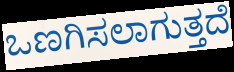
ಒಣಗಿಸಲಾಗುತ್ತದೆ